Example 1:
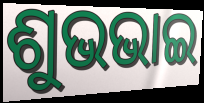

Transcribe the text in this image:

ଶୁଭଭାଇ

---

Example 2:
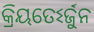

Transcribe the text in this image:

କ୍ରିୟତେଽର୍ଜୁନ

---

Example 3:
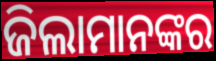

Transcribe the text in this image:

ଜିଲାମାନଙ୍କର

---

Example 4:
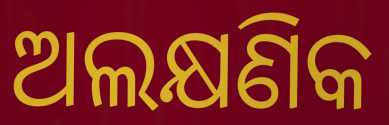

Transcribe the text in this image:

ଅଲକ୍ଷଣିକ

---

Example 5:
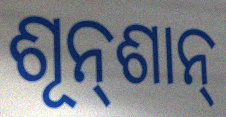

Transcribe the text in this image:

ଶୂନ୍‌ଶାନ୍